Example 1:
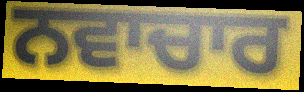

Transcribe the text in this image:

ਨਵਾਚਾਰ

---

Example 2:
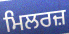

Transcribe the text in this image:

ਮਿਲਰਜ਼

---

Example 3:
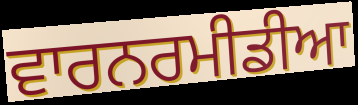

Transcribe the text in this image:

ਵਾਰਨਰਮੀਡੀਆ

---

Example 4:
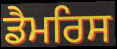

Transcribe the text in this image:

ਡੈਮਰਿਸ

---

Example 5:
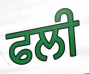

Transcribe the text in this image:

ਫਲੀ